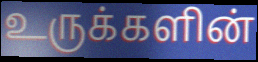
உருக்களின்